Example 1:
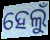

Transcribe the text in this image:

ହେଲୁଁ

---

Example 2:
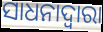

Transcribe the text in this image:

ସାଧନାଦ୍ଵାରା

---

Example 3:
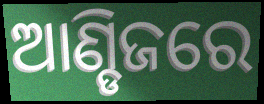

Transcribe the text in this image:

ଆଣ୍ଡିଜରେ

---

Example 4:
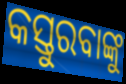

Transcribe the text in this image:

କସ୍ତୁରବାଙ୍କୁ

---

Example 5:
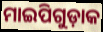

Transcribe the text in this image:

ମାଇପିଗୁଡ଼ାକ